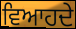
ਵਿਆਹਦੇ